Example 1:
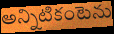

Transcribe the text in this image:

అన్నిటికంటెను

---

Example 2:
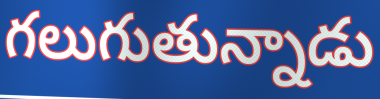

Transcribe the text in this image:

గలుగుతున్నాడు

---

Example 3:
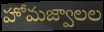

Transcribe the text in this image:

హోమజ్వాలల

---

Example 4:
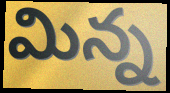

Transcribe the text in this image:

మిన్న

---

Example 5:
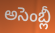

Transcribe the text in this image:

అసెంబ్లీ